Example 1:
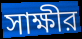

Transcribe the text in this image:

সাক্ষীর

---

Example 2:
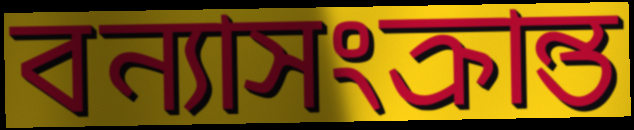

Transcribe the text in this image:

বন্যাসংক্রান্ত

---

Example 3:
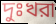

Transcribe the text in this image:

দুঃখরা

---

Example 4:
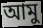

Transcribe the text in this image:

আমু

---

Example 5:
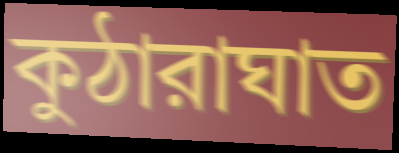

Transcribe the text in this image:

কুঠারাঘাত